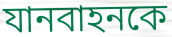
যানবাহনকে